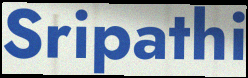
Sripathi